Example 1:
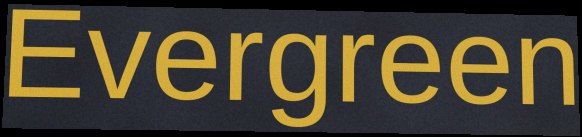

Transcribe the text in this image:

Evergreen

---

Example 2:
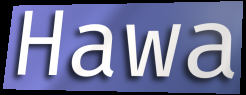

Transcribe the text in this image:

Hawa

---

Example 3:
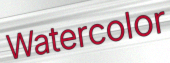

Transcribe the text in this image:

Watercolor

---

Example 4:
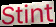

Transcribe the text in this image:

Stint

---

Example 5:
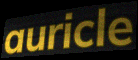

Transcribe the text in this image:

auricle